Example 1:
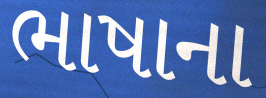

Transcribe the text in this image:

ભાષાના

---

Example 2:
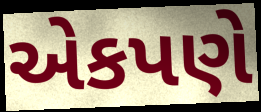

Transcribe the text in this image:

એકપણે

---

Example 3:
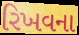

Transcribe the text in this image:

રિખવના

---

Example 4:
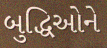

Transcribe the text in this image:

બુદ્ધિઓને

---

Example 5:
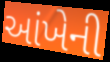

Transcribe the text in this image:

આંખેની